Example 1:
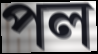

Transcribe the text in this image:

পল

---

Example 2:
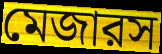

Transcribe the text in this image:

মেজারস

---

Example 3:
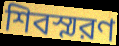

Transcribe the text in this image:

শিবস্মরণ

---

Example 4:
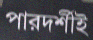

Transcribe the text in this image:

পারদর্শীই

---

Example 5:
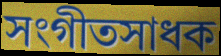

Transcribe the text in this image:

সংগীতসাধক